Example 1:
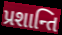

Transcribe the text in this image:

પ્રશાન્તિ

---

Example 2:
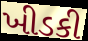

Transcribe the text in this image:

ખીડકી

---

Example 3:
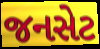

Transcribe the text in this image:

જનસેટ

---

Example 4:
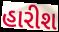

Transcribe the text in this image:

હારીશ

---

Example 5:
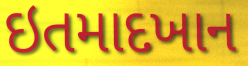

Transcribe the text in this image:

ઇતમાદખાન